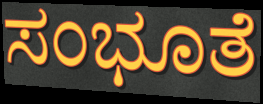
ಸಂಭೂತೆ